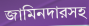
জামিনদারসহ